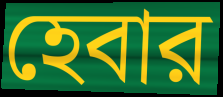
হেবার